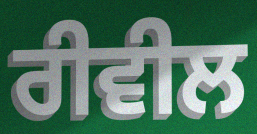
ਰੀਵੀਲ